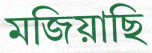
মজিয়াছি